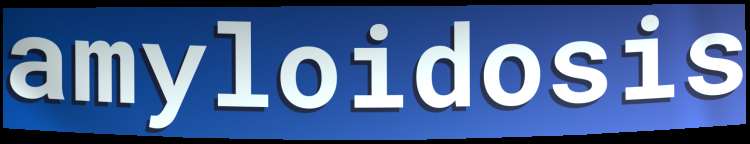
amyloidosis